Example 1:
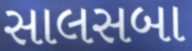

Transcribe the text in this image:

સાલસબા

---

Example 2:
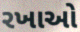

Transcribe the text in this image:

રખાઓ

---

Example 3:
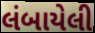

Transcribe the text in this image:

લંબાયેલી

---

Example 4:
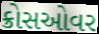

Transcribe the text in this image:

ક્રોસઓવર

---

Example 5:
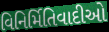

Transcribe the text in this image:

વિનિર્મિતિવાદીઓ